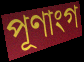
পূণাংগ